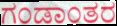
ಗಂಡಾಂತರ